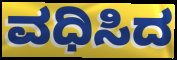
ವಧಿಸಿದ